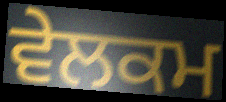
ਵੇਲਕਮ